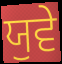
ਯੁਵੇ